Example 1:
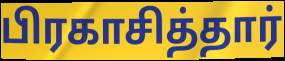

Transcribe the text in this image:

பிரகாசித்தார்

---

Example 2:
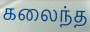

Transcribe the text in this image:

கலைந்த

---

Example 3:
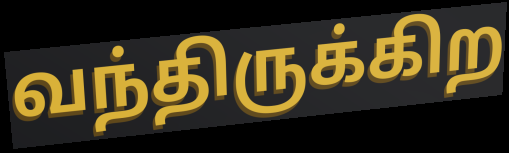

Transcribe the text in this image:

வந்திருக்கிற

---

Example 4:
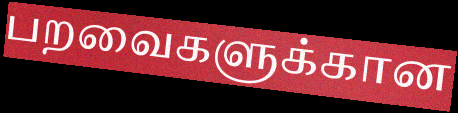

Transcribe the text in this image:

பறவைகளுக்கான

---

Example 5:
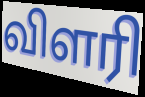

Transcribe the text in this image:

விளரி